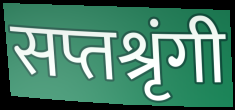
सप्तश्रृंगी